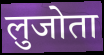
लुजोता